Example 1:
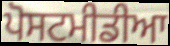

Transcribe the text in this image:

ਪੋਸਟਮੀਡੀਆ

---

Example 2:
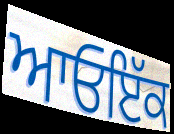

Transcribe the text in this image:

ਆਓਇੱਕ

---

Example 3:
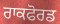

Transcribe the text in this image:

ਰਾਕਫੋਰਡ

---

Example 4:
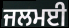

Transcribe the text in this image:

ਜਲਮਈ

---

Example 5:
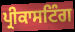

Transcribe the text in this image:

ਪ੍ਰੀਕਾਸਟਿੰਗ